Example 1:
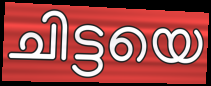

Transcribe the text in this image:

ചിട്ടയെ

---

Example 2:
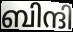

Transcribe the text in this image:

ബിന്ദി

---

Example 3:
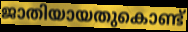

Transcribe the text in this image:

ജാതിയായതുകൊണ്ട്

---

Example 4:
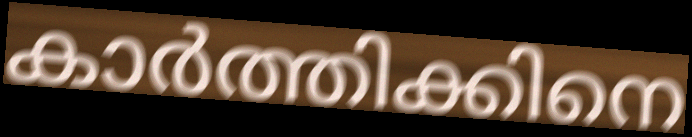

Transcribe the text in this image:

കാർത്തിക്കിനെ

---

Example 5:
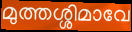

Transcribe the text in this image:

മുത്തശ്ശിമാവേ